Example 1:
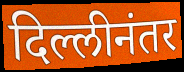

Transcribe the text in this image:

दिल्लीनंतर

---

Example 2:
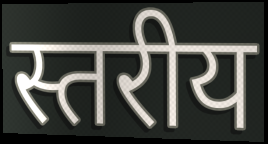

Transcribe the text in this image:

स्तरीय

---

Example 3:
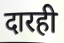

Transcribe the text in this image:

दारही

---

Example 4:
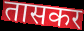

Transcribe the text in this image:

तासकर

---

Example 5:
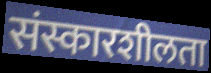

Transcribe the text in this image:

संस्कारशीलता